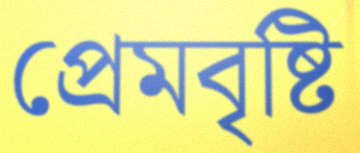
প্রেমবৃষ্টি